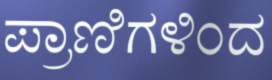
ಪ್ರಾಣಿಗಳಿಂದ